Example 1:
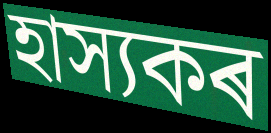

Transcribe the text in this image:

হাস্যকৰ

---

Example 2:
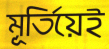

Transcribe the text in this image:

মূৰ্তিয়েই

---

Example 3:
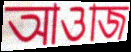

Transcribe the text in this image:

আওাজ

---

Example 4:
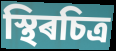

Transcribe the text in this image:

স্থিৰচিত্ৰ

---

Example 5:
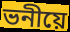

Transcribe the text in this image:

ভনীয়ে